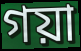
গয়া